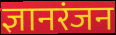
ज्ञानरंजन